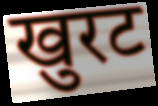
खुरट